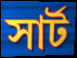
সার্ট